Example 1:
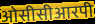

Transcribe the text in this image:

ओसीसीआरपी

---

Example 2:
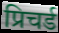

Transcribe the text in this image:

प्रिचर्ड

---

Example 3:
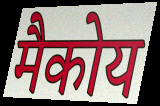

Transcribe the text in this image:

मैकोय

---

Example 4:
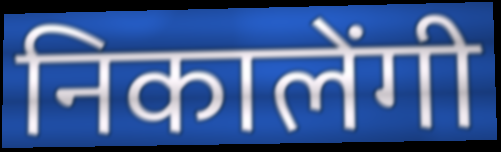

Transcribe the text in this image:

निकालेंगी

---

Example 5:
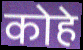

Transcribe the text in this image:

कोहे